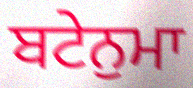
ਬਟੇਨੁਮਾ